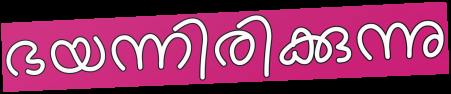
ഭയന്നിരിക്കുന്നു